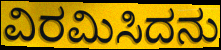
ವಿರಮಿಸಿದನು